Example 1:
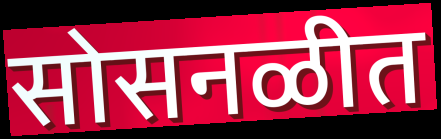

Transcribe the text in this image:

सोसनळीत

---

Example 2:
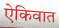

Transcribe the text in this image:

ऐकिवात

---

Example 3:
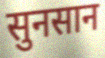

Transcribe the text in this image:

सुनसान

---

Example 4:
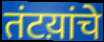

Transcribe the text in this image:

तंटय़ांचे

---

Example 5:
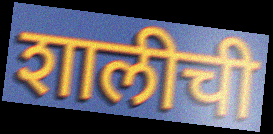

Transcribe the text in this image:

शालीची